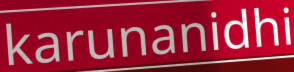
karunanidhi